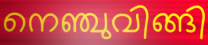
നെഞ്ചുവിങ്ങി